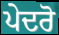
ਪੇਦਰੋ